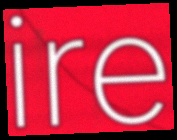
ire